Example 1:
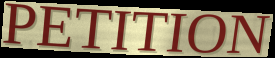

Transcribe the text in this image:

PETITION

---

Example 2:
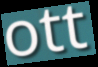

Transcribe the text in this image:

ott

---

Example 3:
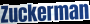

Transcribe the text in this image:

Zuckerman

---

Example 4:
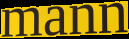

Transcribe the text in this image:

mann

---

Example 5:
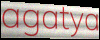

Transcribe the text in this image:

agatya